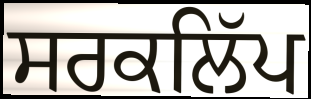
ਸਰਕਲਿੱਪ